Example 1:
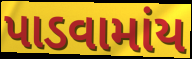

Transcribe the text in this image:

પાડવામાંય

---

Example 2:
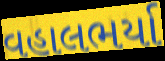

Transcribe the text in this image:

વહાલભર્યા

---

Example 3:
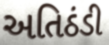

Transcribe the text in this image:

અતિઠંડી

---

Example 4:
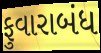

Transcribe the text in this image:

ફુવારાબંધ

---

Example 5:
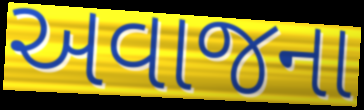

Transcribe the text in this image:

અવાજના